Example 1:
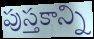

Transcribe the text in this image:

పుస్తకాన్ని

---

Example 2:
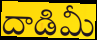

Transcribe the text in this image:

దాడిమీ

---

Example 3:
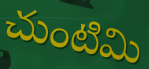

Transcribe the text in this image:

చుంటిమి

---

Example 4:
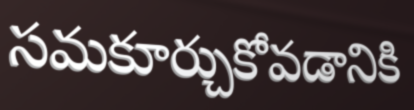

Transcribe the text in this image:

సమకూర్చుకోవడానికి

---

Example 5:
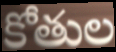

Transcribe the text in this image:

కోతుల